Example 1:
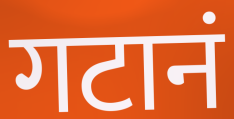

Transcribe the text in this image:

गटानं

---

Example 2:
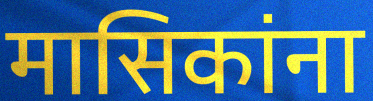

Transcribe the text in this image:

मासिकांना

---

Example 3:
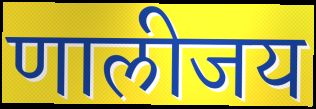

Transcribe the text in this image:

णालीजय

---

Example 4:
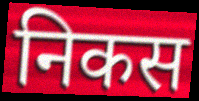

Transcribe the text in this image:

निकस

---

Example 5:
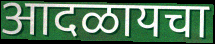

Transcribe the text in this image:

आदळायचा